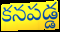
కనపడ్డ